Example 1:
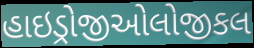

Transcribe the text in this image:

હાઇડ્રોજીઓલોજીકલ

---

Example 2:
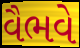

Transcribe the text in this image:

વૈભવે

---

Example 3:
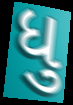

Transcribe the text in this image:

ધુ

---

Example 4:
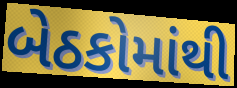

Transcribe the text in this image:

બેઠકોમાંથી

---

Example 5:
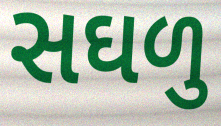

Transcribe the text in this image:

સઘળુ